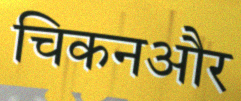
चिकनऔर